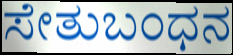
ಸೇತುಬಂಧನ